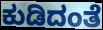
ಕುಡಿದಂತೆ